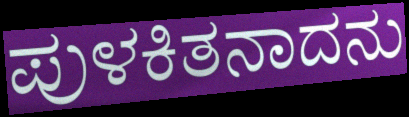
ಪುಳಕಿತನಾದನು